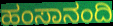
ಹಂಸಾನಂದಿ